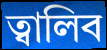
ত্বালিব